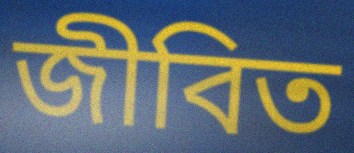
জীবিত